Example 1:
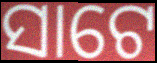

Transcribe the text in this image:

ସାଟେ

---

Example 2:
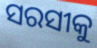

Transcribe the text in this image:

ସରସୀକୁ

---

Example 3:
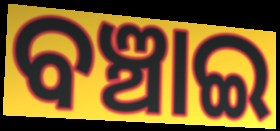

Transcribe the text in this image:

ବଞ୍ଚାଇ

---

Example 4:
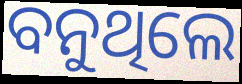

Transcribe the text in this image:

ବନୁଥିଲେ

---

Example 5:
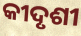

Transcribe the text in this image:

କୀଦୃଶୀ